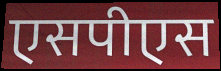
एसपीएस